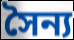
সৈন্য